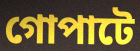
গোপাটে